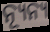
ନ୍ୟୂନ୍ୟ